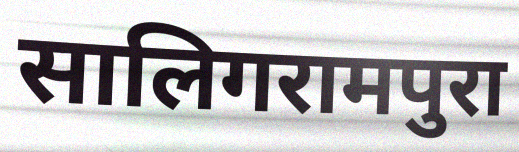
सालिगरामपुरा